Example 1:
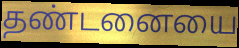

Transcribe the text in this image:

தண்டனையை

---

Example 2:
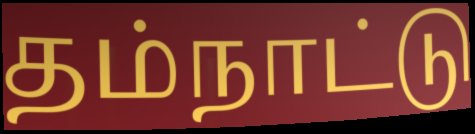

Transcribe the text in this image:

தம்நாட்டு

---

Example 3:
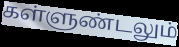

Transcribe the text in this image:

கள்ளுண்டலும்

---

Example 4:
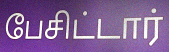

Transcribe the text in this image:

பேசிட்டார்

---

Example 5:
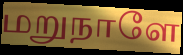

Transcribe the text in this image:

மறுநாளே